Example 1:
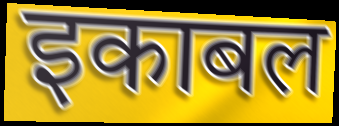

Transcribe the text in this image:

इकाबल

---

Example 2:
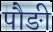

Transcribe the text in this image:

पौङी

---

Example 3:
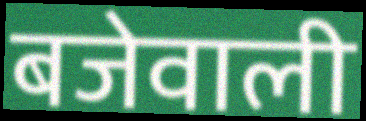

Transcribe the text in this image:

बजेवाली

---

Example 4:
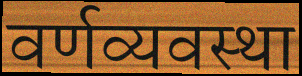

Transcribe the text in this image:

वर्णव्यवस्था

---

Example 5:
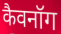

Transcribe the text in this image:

कैवनॉग